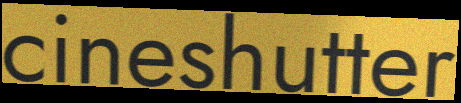
cineshutter